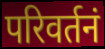
परिवर्तनं